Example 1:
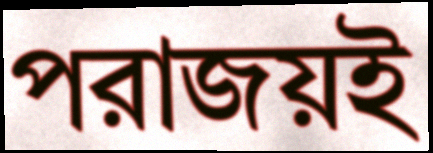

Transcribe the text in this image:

পরাজয়ই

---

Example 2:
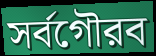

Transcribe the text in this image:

সর্বগৌরব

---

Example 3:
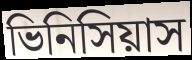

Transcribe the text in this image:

ভিনিসিয়াস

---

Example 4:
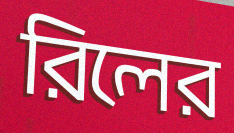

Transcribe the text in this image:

রিলের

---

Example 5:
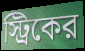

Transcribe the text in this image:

স্ট্রিকের